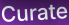
Curate